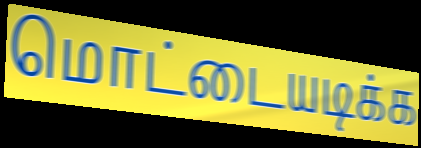
மொட்டையடிக்க